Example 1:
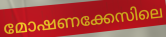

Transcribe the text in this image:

മോഷണക്കേസിലെ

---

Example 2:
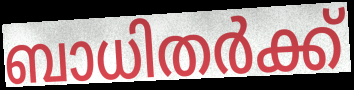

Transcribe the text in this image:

ബാധിതർക്ക്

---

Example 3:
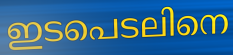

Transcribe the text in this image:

ഇടപെടലിനെ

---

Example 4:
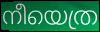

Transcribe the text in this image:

നീയെത്ര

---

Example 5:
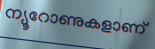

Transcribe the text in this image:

ന്യൂറോണുകളാണ്